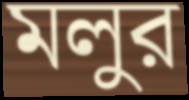
মলুর